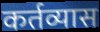
कर्तव्यास